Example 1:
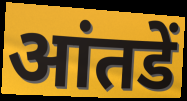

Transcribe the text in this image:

आंतडें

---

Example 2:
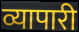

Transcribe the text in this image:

व्‍यापारी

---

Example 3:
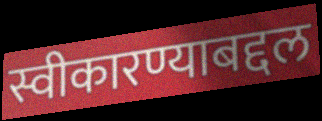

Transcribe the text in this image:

स्वीकारण्याबद्दल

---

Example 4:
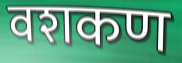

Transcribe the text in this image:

वशकण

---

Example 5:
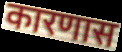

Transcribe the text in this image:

कारणास